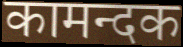
कामन्दक